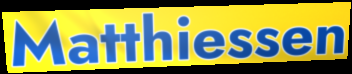
Matthiessen